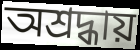
অশ্রদ্ধায়